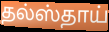
தல்ஸ்தாய்